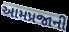
આમપ્રજાની